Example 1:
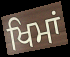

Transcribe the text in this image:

ਖਿਮਾਂ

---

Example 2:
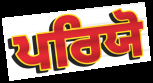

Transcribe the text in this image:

ਪਰਿਯੋ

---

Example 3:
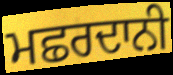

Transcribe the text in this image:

ਮਛਰਦਾਨੀ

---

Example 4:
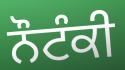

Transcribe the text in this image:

ਨੌਟੰਕੀ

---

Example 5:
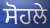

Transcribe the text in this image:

ਸੋਹਲੇ